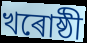
খৰোষ্ঠী